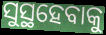
ସୁସ୍ଥହେବାକୁ